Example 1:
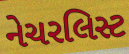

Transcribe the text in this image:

નેચરલિસ્ટ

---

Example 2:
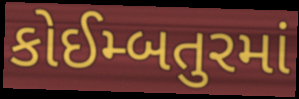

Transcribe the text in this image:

કોઈમ્બતુરમાં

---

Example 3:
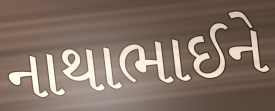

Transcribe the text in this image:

નાથાભાઈને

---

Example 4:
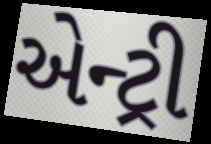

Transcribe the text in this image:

એન્‍ટ્રી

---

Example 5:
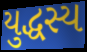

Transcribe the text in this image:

યુદ્ધસ્ય